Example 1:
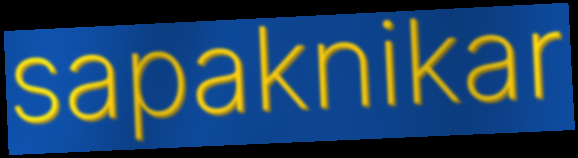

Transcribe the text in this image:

sapaknikar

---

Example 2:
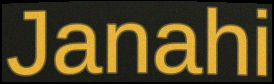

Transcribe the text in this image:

Janahi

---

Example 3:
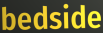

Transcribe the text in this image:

bedside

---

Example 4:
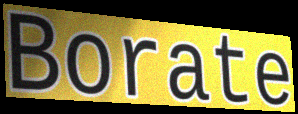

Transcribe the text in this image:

Borate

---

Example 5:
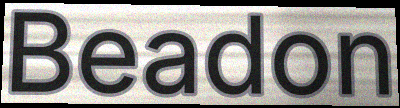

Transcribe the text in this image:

Beadon